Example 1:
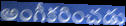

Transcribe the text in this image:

అంగీకరించడు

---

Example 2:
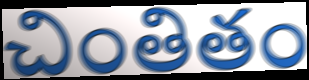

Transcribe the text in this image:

చింతితం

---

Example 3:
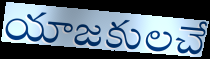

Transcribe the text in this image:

యాజకులచే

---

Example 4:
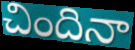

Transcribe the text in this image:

చిందినా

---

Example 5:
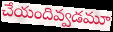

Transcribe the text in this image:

చేయందివ్వడమూ